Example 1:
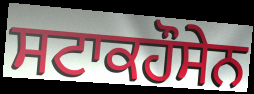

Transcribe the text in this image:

ਸਟਾਕਹੌਸੇਨ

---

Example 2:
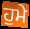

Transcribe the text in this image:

ਹੁਮੇ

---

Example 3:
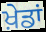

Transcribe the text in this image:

ਖ਼ੇਡਾਂ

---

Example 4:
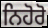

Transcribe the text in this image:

ਨਿਹੋਰੋ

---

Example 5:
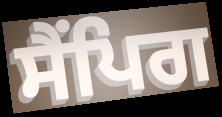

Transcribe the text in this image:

ਸੈਂਪਿਗ